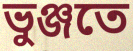
ভুঞ্জতে